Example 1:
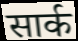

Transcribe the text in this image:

सार्क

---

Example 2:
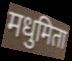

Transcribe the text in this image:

मधुमिता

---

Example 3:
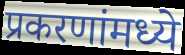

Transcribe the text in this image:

प्रकरणांमध्ये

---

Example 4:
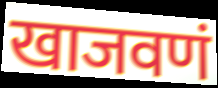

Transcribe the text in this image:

खाजवणं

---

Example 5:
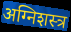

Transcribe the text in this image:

अग्निशस्त्र